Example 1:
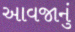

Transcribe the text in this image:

આવજાનું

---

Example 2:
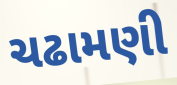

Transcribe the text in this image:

ચઢામણી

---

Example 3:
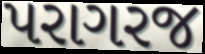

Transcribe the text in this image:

પરાગરજ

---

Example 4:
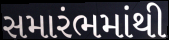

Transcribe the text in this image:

સમારંભમાંથી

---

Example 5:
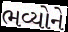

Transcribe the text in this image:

ભવ્યોને